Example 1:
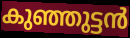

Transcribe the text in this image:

കുഞ്ഞുട്ടൻ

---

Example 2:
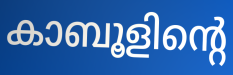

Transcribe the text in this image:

കാബൂളിന്റെ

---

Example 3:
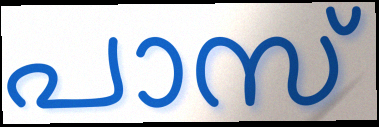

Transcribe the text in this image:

പാസ്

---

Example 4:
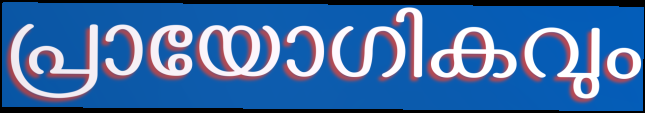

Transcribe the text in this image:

പ്രായോഗികവും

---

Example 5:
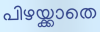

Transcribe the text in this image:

പിഴയ്ക്കാതെ